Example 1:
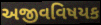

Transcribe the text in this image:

અજીવવિષયક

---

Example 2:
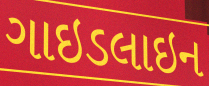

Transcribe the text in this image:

ગાઇડલાઇન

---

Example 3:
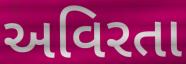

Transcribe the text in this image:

અવિરતા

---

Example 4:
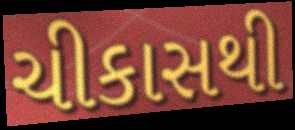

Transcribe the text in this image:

ચીકાસથી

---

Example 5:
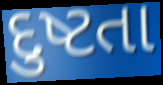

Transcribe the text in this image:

દુષ્ટતા